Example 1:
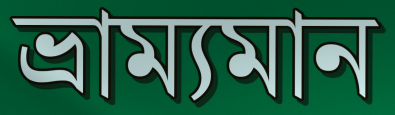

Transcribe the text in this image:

ভ্ৰাম্যমান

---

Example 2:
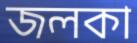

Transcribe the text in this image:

জলকা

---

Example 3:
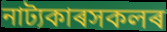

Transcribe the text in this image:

নাট্যকাৰসকলৰ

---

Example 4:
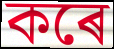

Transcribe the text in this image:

কৰে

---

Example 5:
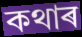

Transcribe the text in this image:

কথাৰ